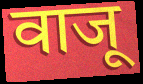
वाजू